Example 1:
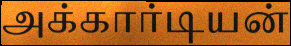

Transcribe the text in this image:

அக்கார்டியன்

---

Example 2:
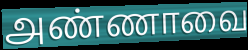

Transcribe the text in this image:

அண்ணாவை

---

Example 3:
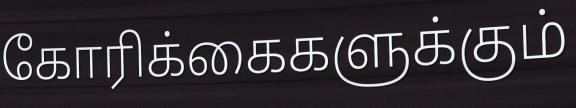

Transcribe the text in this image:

கோரிக்கைகளுக்கும்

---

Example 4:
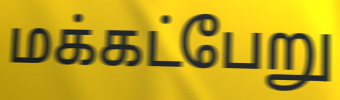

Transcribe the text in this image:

மக்கட்பேறு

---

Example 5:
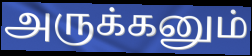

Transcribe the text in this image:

அருக்கனும்